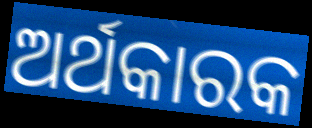
ଅର୍ଥକାରକ